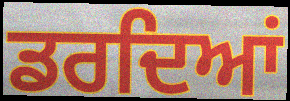
ਡਰਦਿਆਂ